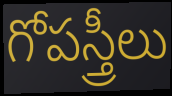
గోపస్త్రీలు